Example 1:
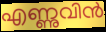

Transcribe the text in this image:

എണ്ണുവിൻ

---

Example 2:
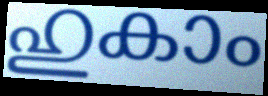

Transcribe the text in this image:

ഹുകാം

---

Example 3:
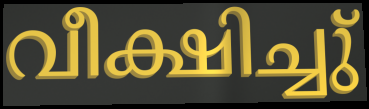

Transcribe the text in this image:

വീക്ഷിച്ചു്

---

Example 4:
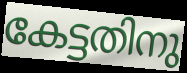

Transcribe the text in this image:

കേട്ടതിനു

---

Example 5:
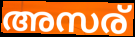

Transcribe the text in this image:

അസര്